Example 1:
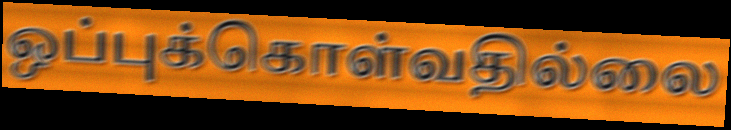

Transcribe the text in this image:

ஒப்புக்கொள்வதில்லை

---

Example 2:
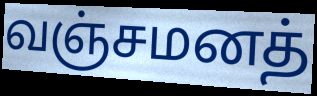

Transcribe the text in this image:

வஞ்சமனத்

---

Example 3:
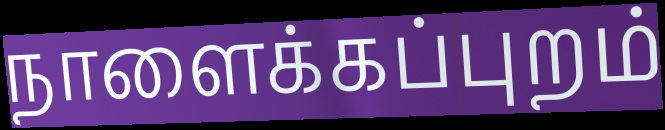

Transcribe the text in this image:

நாளைக்கப்புறம்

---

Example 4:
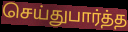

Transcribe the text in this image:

செய்துபார்த்த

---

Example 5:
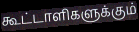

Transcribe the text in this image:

கூட்டாளிகளுக்கும்